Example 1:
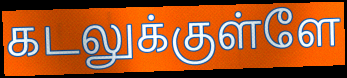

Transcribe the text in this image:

கடலுக்குள்ளே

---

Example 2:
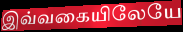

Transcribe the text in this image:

இவ்வகையிலேயே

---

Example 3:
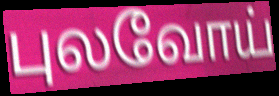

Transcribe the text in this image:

புலவோய்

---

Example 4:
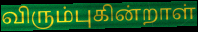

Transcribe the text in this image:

விரும்புகின்றாள்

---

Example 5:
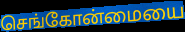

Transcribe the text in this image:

செங்கோன்மையை